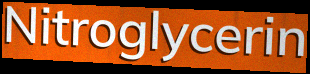
Nitroglycerin